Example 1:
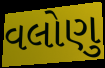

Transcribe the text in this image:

વલોણુ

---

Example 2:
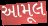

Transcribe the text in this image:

આમૂલ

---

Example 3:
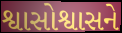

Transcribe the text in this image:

શ્વાસોશ્વાસને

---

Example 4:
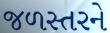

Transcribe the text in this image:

જળસ્તરને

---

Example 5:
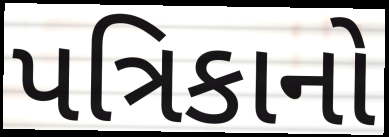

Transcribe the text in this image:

પત્રિકાનો